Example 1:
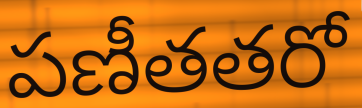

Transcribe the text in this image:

పణీతతరో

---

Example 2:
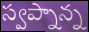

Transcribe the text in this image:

స్వప్నాన్న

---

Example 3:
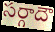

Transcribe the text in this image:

సర్గాదౌ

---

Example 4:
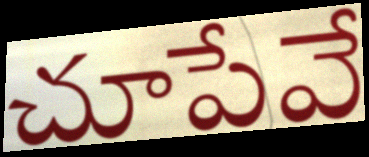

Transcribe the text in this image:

చూపేవే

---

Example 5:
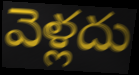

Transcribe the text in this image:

వెళ్లదు